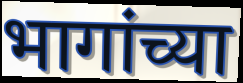
भागांच्या